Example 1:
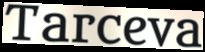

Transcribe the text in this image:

Tarceva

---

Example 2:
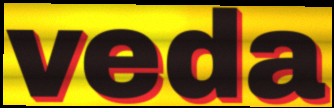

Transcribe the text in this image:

veda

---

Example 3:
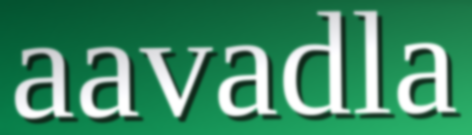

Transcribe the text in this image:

aavadla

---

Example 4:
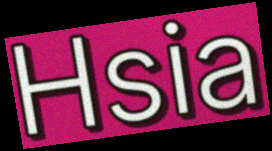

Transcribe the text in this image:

Hsia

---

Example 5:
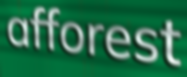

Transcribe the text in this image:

afforest